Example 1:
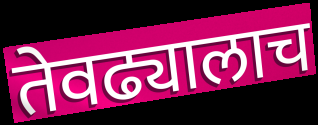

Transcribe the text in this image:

तेवढ्यालाच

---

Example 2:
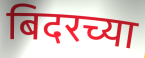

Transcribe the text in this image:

बिदरच्या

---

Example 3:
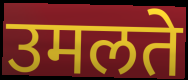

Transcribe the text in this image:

उमलते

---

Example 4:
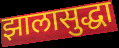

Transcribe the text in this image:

झालासुद्धा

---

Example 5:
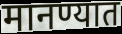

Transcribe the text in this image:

मानण्यात